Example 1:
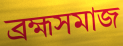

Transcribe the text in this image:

ব্রহ্মসমাজ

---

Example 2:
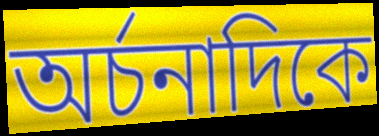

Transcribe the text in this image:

অর্চনাদিকে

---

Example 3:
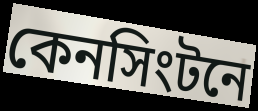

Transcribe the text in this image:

কেনসিংটনে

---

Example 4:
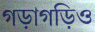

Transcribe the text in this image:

গড়াগড়িও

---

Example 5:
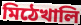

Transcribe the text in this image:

মিঠেখালি